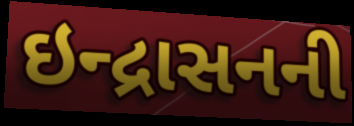
ઇન્દ્રાસનની